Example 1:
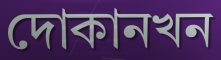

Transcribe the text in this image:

দোকানখন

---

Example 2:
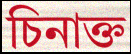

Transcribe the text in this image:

চিনাক্ত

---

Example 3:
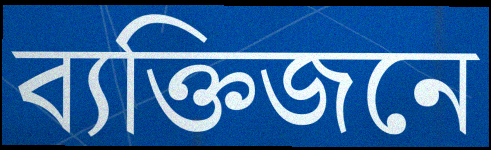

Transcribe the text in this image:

ব্যক্তিজনে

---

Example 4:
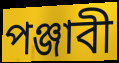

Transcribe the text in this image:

পঞ্জাবী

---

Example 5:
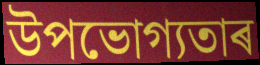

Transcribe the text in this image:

উপভোগ্যতাৰ